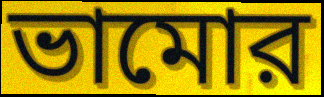
ভামোর